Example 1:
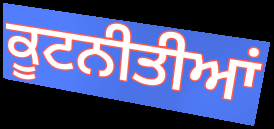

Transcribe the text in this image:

ਕੂਟਨੀਤੀਆਂ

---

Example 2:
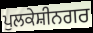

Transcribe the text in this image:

ਪੁਲਕੇਸ਼ੀਨਗਰ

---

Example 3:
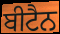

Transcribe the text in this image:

ਬੀਟੈਨ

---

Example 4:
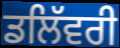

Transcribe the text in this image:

ਡਲਿੱਵਰੀ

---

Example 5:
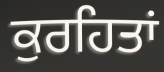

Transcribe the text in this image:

ਕੁਰਹਿਤਾਂ